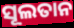
ସୂଲତାନ